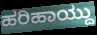
ಹರಿಹಾಯ್ದು